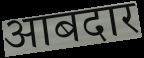
आबदार